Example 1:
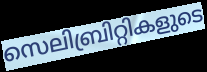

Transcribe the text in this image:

സെലിബ്രിറ്റികളുടെ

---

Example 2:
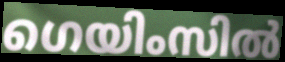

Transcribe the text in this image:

ഗെയിംസിൽ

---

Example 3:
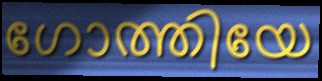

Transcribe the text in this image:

ഗോത്തിയേ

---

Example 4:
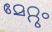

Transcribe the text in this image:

മേറ്റും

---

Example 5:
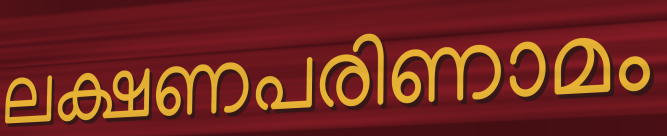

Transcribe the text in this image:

ലക്ഷണപരിണാമം